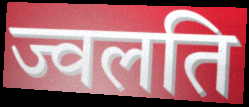
ज्वलति